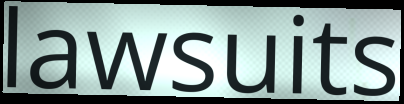
lawsuits